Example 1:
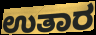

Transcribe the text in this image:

ಉತಾರ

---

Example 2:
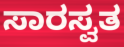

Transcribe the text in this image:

ಸಾರಸ್ವತ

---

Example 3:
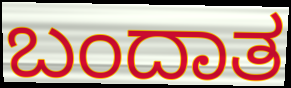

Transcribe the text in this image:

ಬಂದಾತ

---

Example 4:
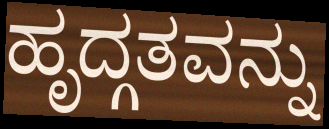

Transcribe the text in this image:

ಹೃದ್ಗತವನ್ನು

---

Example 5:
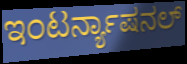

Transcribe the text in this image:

ಇಂಟರ್ನ್ಯಾಷನಲ್